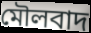
মৌলবাদ